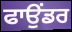
ਫਾਉਂਡਰ